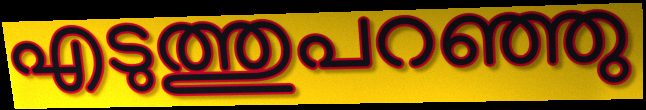
എടുത്തുപറഞ്ഞു